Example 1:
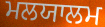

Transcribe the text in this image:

ਮਲਯਾਲਮ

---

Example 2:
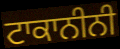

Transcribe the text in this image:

ਟਾਕਾਨੀਨੀ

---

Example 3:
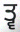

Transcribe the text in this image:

ਤ੍ਵ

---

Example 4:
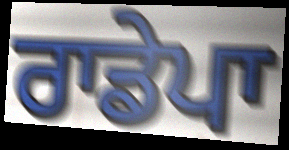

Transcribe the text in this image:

ਰਾਡੇਪਾ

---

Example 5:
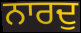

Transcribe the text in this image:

ਨਾਰਦੁ